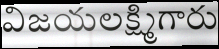
విజయలక్ష్మిగారు